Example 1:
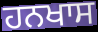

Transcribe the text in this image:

ਹਨਖਾਸ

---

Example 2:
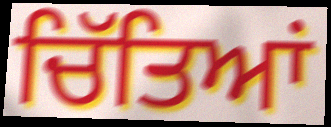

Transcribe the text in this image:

ਚਿੱਤਿਆਂ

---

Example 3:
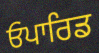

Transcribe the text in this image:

ਓਪਾਰਿਡ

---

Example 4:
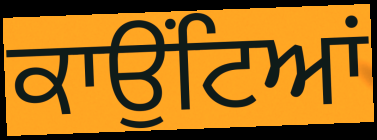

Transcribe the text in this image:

ਕਾਉਂਟਿਆਂ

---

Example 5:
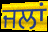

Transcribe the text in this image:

ਜਲਾਂ